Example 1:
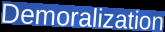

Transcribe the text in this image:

Demoralization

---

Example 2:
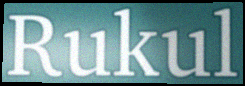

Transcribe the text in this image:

Rukul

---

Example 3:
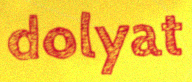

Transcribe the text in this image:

dolyat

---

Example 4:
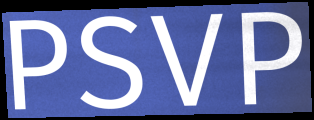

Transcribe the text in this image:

PSVP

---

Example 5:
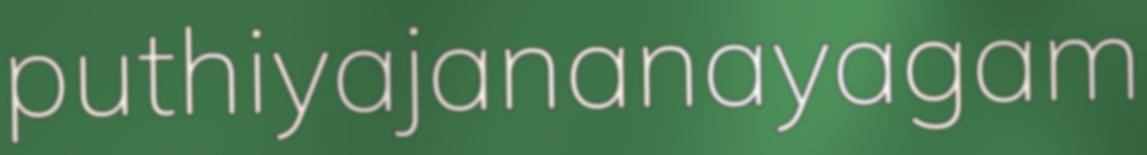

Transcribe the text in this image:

puthiyajananayagam